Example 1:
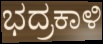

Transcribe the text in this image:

ಭದ್ರಕಾಳಿ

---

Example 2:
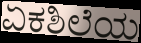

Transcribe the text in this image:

ಏಕಶಿಲೆಯ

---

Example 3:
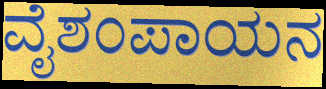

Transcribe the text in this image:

ವೈಶಂಪಾಯನ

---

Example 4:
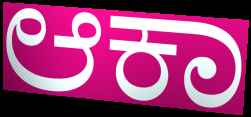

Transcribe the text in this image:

ಆಕಾ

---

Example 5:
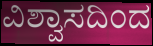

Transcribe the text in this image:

ವಿಶ್ವಾಸದಿಂದ